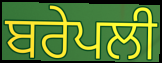
ਬਰੇਪਲੀ